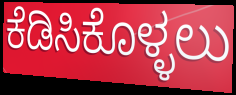
ಕೆಡಿಸಿಕೊಳ್ಳಲು